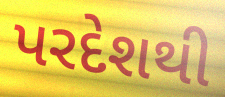
પરદેશથી